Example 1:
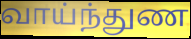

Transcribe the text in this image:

வாய்ந்துண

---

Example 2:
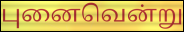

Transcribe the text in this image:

புனைவென்று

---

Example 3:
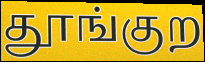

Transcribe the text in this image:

தூங்குற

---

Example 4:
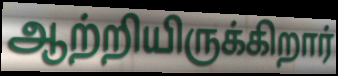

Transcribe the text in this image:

ஆற்றியிருக்கிறார்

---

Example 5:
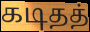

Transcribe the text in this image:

கடிதத்